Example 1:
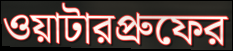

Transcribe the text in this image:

ওয়াটারপ্রুফের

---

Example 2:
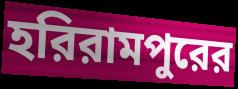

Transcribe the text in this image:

হরিরামপুরের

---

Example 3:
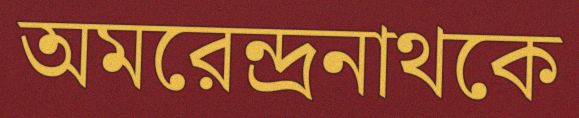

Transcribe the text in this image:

অমরেন্দ্রনাথকে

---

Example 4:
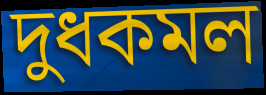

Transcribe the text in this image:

দুধকমল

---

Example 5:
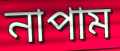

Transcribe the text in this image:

নাপাম